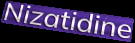
Nizatidine